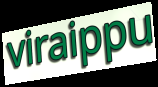
viraippu